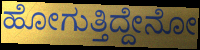
ಹೋಗುತ್ತಿದ್ದೇನೋ